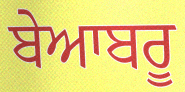
ਬੇਆਬਰੂ